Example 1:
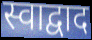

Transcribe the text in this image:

स्वाद्वाद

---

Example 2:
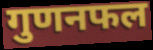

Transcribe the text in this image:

गुणनफल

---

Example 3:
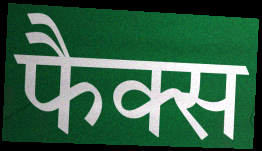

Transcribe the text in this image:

फैक्स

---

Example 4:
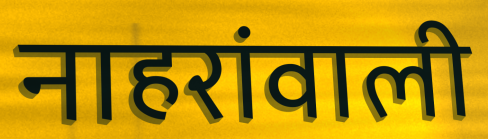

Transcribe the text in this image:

नाहरांवाली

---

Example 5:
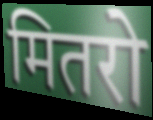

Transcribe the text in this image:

मितरो